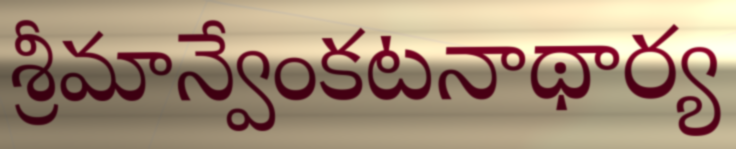
శ్రీమాన్వేంకటనాథార్య